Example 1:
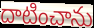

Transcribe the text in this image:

దాటించాను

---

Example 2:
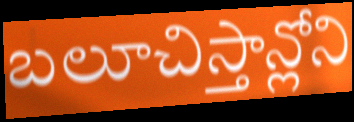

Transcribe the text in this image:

బలూచిస్తాన్లోని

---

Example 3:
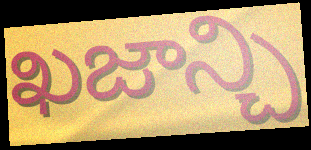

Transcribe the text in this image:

ఖజాన్చి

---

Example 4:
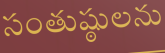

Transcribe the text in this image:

సంతుష్ఠులను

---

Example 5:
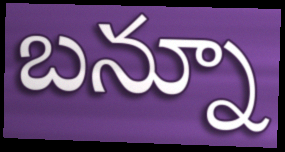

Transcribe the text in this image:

బన్నూ